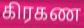
கிரகண